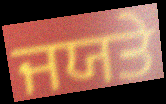
ਜਯਤੇ